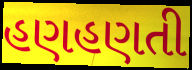
હણહણતી